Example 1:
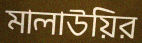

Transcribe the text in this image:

মালাউয়ির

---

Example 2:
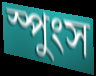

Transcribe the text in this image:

স্পুংস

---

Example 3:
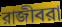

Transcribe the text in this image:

রাজীবরা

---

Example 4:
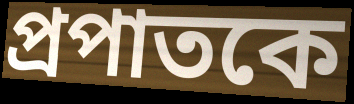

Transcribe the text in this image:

প্রপাতকে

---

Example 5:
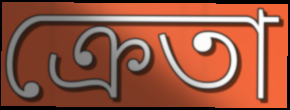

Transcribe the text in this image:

ক্রেতা